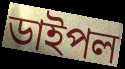
ডাইপল